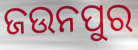
ଜଉନପୁର